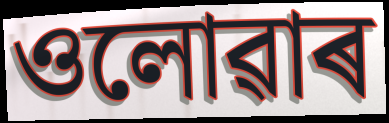
ওলোৱাৰ